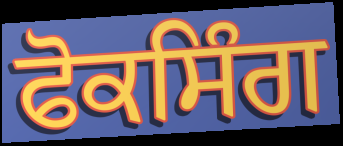
ਫੋਕਸਿੰਗ